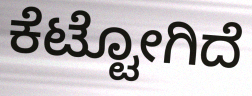
ಕೆಟ್ಟೋಗಿದೆ